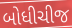
બોધીચીજ